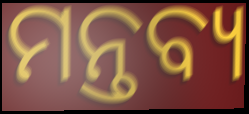
ମନ୍ତବ୍ୟ